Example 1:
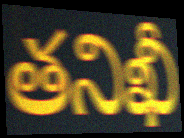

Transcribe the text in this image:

తనిఖీ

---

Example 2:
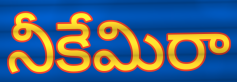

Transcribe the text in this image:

నీకేమిరా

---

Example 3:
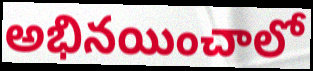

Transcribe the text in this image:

అభినయించాలో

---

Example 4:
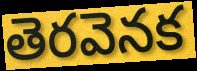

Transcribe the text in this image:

తెరవెనక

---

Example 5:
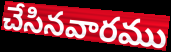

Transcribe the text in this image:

చేసినవారము